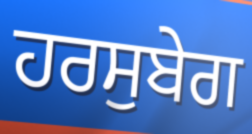
ਹਰਸੁਬੇਗ